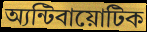
অ্যন্টিবায়োটিক